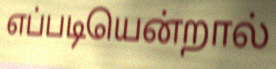
எப்படியென்றால்